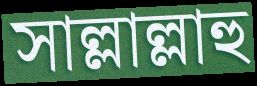
সাল্লাল্লাহু